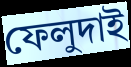
ফেলুদাই